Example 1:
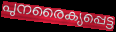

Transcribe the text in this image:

പുനരൈക്യപ്പെട്ട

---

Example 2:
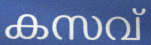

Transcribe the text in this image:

കസവ്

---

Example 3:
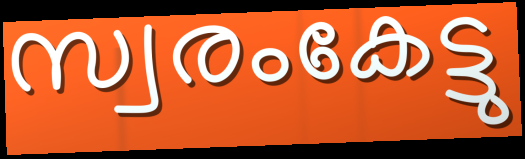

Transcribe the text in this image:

സ്വരംകേട്ടു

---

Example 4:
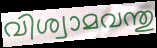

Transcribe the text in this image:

വിശ്വാമവന്തു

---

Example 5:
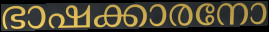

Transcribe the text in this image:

ഭാഷക്കാരനോ